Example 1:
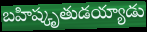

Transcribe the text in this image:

బహిష్కృతుడయ్యాడు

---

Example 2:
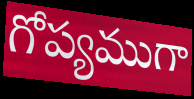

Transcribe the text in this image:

గోప్యముగా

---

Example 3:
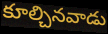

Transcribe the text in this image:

కూల్చినవాడు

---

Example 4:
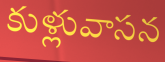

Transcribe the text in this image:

కుళ్లువాసన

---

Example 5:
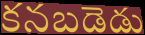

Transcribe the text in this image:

కనబడెడు